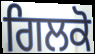
ਗਿਲਕੋ